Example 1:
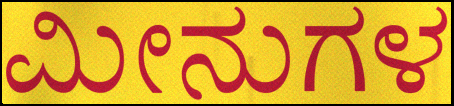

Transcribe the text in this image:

ಮೀನುಗಳ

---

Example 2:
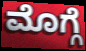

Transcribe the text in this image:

ಮೊಗ್ಗೆ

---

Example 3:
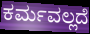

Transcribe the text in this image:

ಕರ್ಮವಲ್ಲದೆ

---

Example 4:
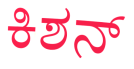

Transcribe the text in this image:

ಕಿಶನ್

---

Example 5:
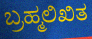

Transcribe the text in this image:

ಬ್ರಹ್ಮಲಿಖಿತ